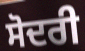
ਸੋਦਰੀ